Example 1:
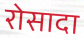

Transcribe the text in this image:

रोसादा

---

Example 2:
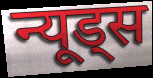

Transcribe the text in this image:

न्यूड्स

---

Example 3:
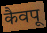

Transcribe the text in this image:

कैवपू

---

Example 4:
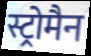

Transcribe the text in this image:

स्ट्रोमैन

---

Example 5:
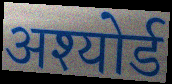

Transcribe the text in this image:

अश्योर्ड